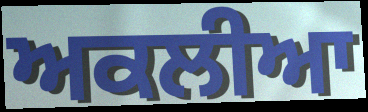
ਅਕਲੀਆ